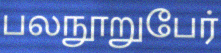
பலநூறுபேர்